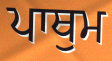
ਪਾਥੁਮ